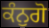
ਕੰਨੁਗੋ